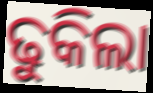
ଢୁକିଲା